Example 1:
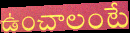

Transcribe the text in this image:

ఉంచాలంటే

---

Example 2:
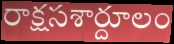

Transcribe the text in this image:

రాక్షసశార్దూలం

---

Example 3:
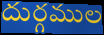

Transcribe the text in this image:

దుర్గముల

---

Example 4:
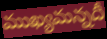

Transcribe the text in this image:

ముఖ్యమన్నదీ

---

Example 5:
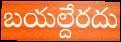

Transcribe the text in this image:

బయల్దేరదు